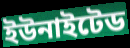
ইউনাইটেড